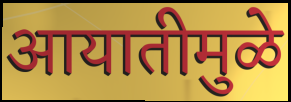
आयातीमुळे